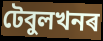
টেবুলখনৰ